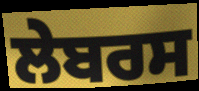
ਲੇਬਰਸ